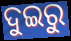
ଦୁଇରୁ